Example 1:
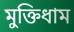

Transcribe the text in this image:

মুক্তিধাম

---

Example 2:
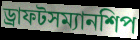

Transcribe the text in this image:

ড্রাফটসম্যানশিপ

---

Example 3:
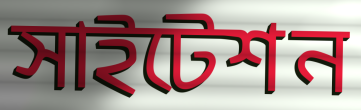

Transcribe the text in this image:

সাইটেশন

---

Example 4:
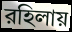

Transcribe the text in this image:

রহিলায়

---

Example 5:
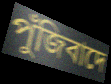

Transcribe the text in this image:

পুঁজিবাদে